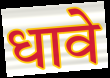
धावे